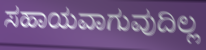
ಸಹಾಯವಾಗುವುದಿಲ್ಲ